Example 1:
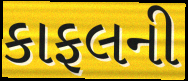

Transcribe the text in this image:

કાફલની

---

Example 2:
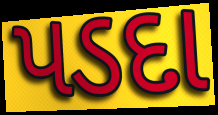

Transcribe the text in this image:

પડદા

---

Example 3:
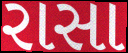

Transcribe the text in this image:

રાસા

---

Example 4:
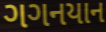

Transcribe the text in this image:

ગગનયાન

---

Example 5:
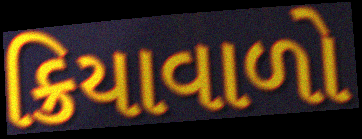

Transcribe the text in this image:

ક્રિયાવાળો